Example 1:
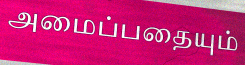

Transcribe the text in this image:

அமைப்பதையும்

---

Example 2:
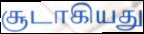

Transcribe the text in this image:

சூடாகியது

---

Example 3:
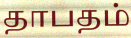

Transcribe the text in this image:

தாபதம்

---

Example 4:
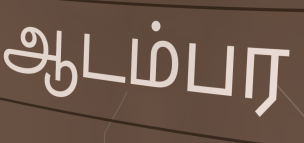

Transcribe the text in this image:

ஆடம்பர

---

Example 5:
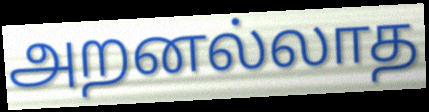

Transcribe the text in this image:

அறனல்லாத